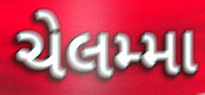
ચેલમ્મા